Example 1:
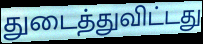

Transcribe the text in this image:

துடைத்துவிட்டது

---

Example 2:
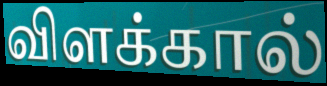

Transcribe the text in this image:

விளக்கால்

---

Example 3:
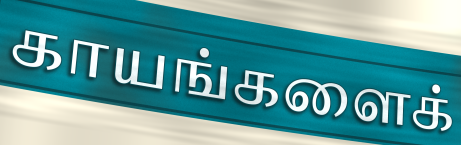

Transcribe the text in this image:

காயங்களைக்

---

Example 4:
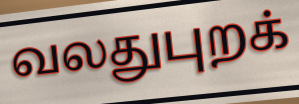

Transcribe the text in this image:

வலதுபுறக்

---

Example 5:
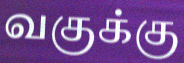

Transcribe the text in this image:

வகுக்கு